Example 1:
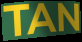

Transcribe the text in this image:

TAN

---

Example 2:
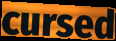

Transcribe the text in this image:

cursed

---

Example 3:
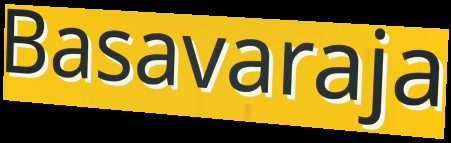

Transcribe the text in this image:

Basavaraja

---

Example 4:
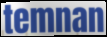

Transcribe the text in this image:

temnan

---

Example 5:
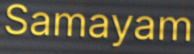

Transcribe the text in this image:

Samayam